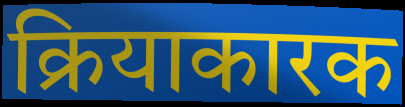
क्रियाकारक